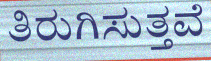
ತಿರುಗಿಸುತ್ತವೆ